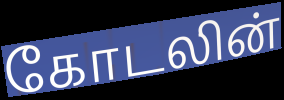
கோடலின்